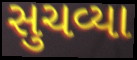
સુચવ્યા